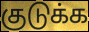
குடுக்க